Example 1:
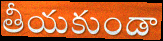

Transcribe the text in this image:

తీయకుండా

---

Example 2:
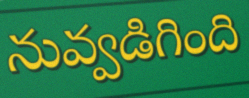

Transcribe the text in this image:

నువ్వడిగింది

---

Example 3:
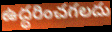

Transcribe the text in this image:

ఉద్ధరించగలదు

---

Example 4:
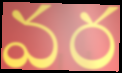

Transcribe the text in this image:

వర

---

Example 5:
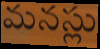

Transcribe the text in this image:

మనస్లు